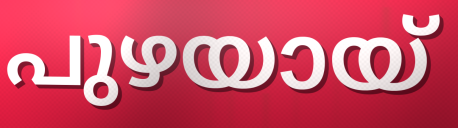
പുഴയായ്